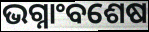
ଭଗ୍ନାଂବଶେଷ